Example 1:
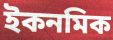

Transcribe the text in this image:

ইকনমিক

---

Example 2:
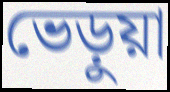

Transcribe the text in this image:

ভেড়ুয়া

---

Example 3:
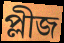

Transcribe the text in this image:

প্লীজ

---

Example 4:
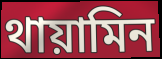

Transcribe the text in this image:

থায়ামিন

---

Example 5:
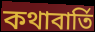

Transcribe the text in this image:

কথাবার্তি